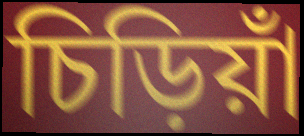
চিড়িয়াঁ